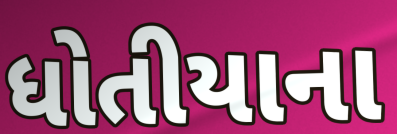
ધોતીયાના